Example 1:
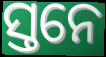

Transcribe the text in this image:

ସ୍ତନେ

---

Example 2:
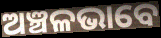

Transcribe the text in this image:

ଅଞ୍ଚଳଭାବେ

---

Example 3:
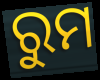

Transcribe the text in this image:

ରୁମ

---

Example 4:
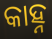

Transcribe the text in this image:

କାହ୍ନ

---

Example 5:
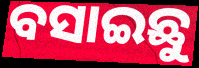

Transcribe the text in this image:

ବସାଇଛୁ